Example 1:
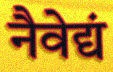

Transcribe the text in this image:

नैवेद्यं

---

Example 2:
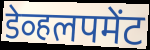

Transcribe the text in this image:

डेव्‍हलपमेंट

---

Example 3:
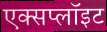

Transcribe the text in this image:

एक्सप्लॉइट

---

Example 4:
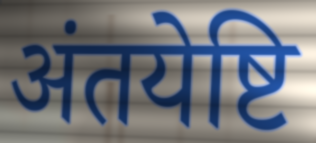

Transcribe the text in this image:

अंतयेष्टि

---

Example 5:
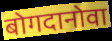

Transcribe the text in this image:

बोगदानोवा